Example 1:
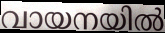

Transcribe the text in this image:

വായനയിൽ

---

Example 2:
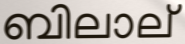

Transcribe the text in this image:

ബിലാല്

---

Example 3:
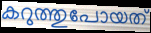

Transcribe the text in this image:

കറുത്തുപോയത്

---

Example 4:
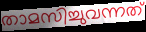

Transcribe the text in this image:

താമസിച്ചുവന്നത്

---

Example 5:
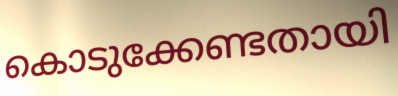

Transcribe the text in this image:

കൊടുക്കേണ്ടതായി